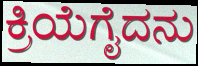
ಕ್ರಿಯೆಗೈದನು